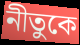
নীতুকে